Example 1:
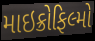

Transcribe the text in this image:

માઇક્રોફિલ્મો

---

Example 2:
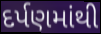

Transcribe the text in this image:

દર્પણમાંથી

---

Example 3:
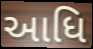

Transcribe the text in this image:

આધિ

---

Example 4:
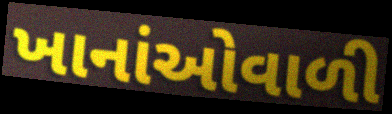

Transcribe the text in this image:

ખાનાંઓવાળી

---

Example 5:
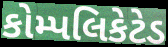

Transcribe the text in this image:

કોમ્પલિકેટેડ